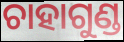
ଚାହାଗୁଣ୍ଡ